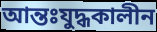
আন্তঃযুদ্ধকালীন